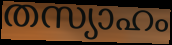
തസ്യാഹം